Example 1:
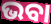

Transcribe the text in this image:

ଭବା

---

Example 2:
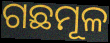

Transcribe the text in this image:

ଗଛମୂଳ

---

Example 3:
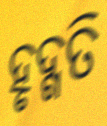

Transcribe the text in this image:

ହୃଦ୍ଗତି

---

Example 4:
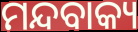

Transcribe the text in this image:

ମନ୍ଦବାକ୍ୟ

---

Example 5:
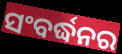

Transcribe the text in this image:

ସଂବର୍ଦ୍ଧନର